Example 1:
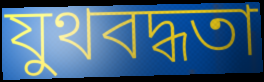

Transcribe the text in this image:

যুথবদ্ধতা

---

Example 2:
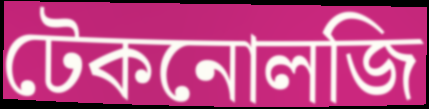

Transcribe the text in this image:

টেকনোলজি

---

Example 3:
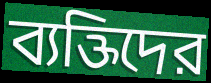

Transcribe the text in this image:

ব্যক্তিদের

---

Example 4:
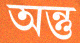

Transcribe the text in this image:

অন্তু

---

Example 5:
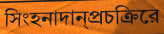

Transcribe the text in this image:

সিংহনাদান্প্রচক্রিরে